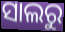
ସାଲରୁ